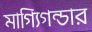
মাগ্যিগন্ডার